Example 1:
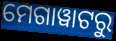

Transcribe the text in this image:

ମେଗାୱାଟରୁ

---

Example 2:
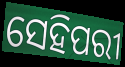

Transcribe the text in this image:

ସେହିପରୀ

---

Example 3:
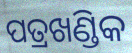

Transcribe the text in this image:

ପତ୍ରଖଣ୍ଡିକ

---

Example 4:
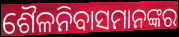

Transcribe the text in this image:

ଶୈଳନିବାସମାନଙ୍କର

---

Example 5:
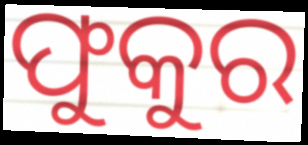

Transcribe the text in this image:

ଫୁକୁର